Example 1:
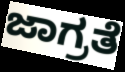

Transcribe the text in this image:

ಜಾಗ್ರತೆ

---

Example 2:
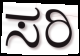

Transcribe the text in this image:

ಸರಿ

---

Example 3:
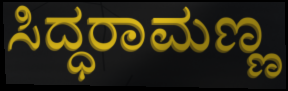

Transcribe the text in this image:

ಸಿದ್ಧರಾಮಣ್ಣ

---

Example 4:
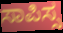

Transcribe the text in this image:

ಸಾಪಿಸ್ಸ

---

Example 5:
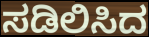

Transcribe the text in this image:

ಸಡಿಲಿಸಿದ